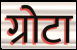
ग्रोटा